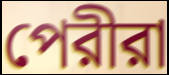
পেরীরা